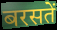
बरसतें